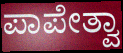
ಪಾಪೇತ್ವಾ